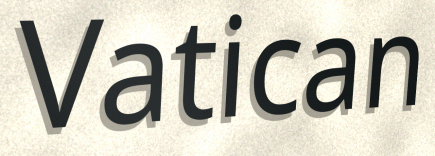
Vatican